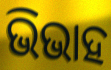
ଭିଭାହ